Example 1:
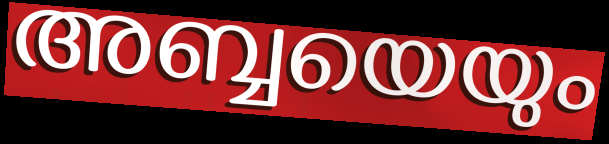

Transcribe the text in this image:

അബ്ബയെയും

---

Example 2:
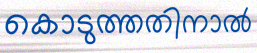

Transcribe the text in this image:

കൊടുത്തതിനാൽ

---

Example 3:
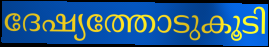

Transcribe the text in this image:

ദേഷ്യത്തോടുകൂടി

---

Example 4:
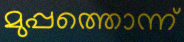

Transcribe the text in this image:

മുപ്പത്തൊന്ന്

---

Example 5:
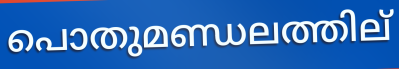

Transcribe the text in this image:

പൊതുമണ്ഡലത്തില്